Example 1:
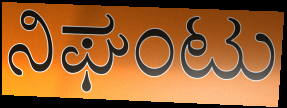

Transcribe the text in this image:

ನಿಘಂಟು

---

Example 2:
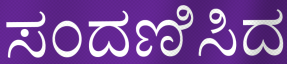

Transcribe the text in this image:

ಸಂದಣಿಸಿದ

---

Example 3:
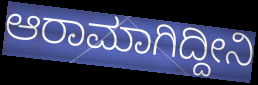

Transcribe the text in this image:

ಆರಾಮಾಗಿದ್ದೀನಿ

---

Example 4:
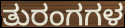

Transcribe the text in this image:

ತುರಂಗಗಳ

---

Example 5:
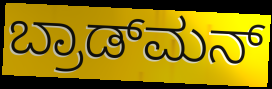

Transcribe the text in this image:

ಬ್ರಾಡ್‌ಮನ್